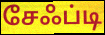
சேஃப்டி